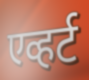
एव्हर्ट